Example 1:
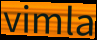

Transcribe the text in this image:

vimla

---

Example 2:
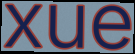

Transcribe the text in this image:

xue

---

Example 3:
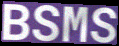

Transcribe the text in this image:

BSMS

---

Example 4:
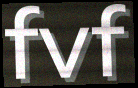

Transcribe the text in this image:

fvf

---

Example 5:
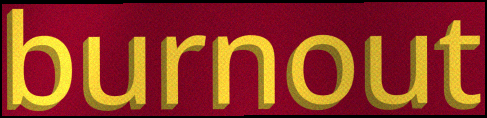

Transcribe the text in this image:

burnout